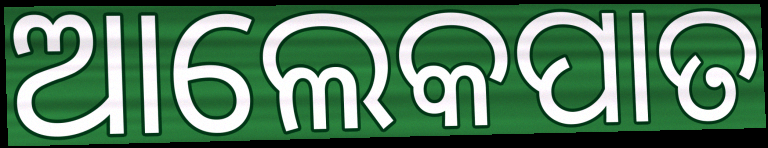
ଆଲେକପାତ